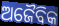
ଅଜୈବିକ